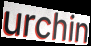
urchin